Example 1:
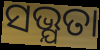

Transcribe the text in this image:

ସଭ୍ଯତା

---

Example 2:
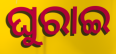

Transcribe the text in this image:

ଘୁରାଇ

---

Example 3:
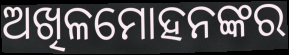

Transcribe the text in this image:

ଅଖିଳମୋହନଙ୍କର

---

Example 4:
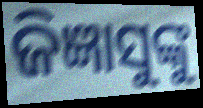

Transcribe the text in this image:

ଜିଜ୍ଞାସୁଙ୍କୁ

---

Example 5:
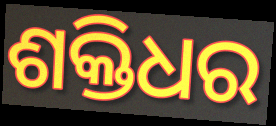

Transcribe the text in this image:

ଶକ୍ତିଧର